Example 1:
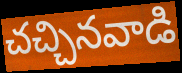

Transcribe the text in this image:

చచ్చినవాడి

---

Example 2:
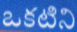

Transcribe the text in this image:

ఒకటిని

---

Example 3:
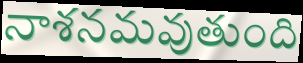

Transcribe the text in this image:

నాశనమవుతుంది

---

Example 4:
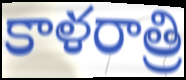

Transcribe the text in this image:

కాళరాత్రి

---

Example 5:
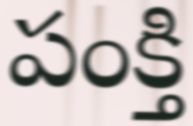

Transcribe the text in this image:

పంక్తి